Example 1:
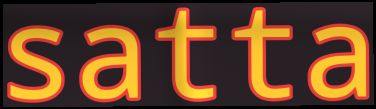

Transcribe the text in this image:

satta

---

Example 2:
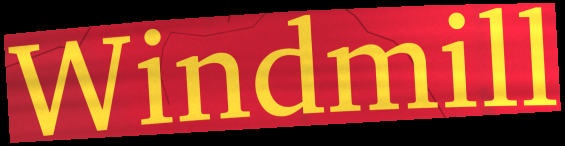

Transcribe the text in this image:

Windmill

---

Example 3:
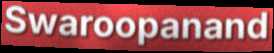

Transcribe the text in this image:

Swaroopanand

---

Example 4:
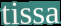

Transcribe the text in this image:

tissa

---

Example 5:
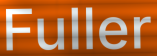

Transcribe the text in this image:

Fuller